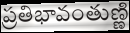
ప్రతిభావంతుణ్ణి